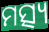
ମତ୍ସ୍ୟ